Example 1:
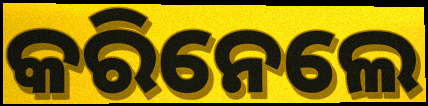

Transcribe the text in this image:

କରିନେଲେ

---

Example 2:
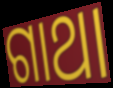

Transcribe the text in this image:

ଗାଥା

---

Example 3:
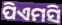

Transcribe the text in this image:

ପିଏମସି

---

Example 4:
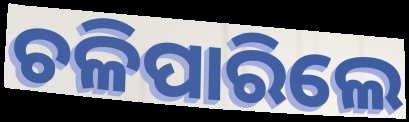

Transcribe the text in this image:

ଚଳିପାରିଲେ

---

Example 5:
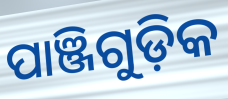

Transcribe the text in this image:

ପାଞ୍ଜିଗୁଡ଼ିକ